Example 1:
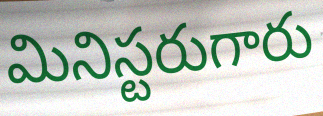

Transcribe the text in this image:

మినిస్టరుగారు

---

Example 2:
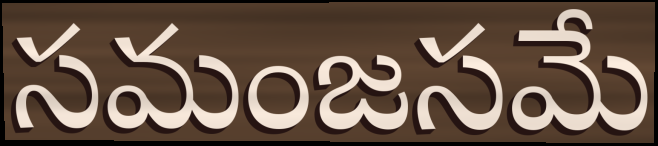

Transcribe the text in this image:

సమంజసమే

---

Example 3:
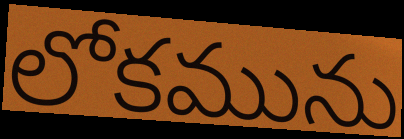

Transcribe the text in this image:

లోకమును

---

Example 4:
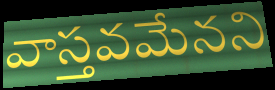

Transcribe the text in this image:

వాస్తవమేనని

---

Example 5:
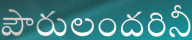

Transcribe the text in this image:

పౌరులందరినీ